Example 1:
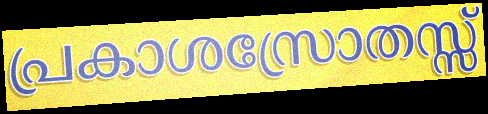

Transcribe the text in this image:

പ്രകാശസ്രോതസ്സ്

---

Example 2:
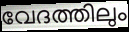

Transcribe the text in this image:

വേദത്തിലും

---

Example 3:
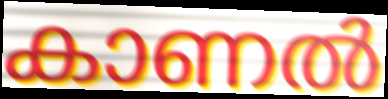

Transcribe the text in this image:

കാണൽ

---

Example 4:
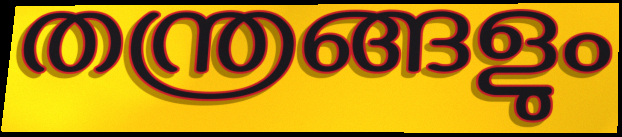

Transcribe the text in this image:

തന്ത്രങ്ങളും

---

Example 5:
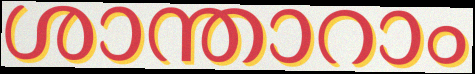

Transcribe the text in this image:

ശാന്താറാം